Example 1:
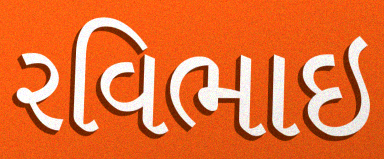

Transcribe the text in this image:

રવિભાઇ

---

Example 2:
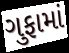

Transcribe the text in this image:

ગુફામાં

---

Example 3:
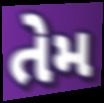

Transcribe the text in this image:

તેમ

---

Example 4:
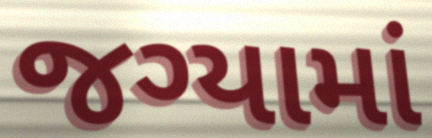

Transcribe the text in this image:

જગ્યામાં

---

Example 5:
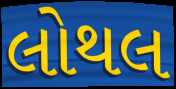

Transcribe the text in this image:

લોથલ